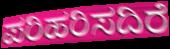
ಪರಿಹರಿಸದಿರೆ